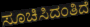
ಸೂಚಿಸಿದಂತಿದೆ